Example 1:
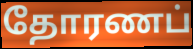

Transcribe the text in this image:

தோரணப்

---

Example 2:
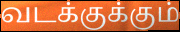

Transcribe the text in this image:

வடக்குக்கும்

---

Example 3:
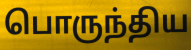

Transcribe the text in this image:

பொருந்திய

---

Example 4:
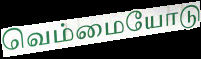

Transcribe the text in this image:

வெம்மையோடு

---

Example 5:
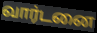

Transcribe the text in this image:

வார்டனை